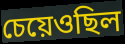
চেয়েওছিল